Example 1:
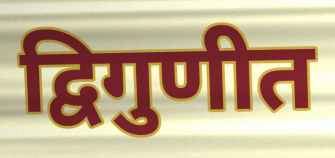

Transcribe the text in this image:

द्विगुणीत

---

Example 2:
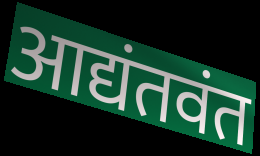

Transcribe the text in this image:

आद्यंतवंत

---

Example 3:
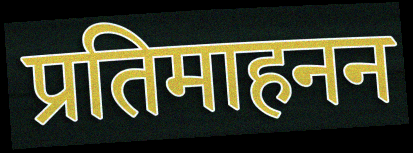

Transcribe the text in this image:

प्रतिमाहनन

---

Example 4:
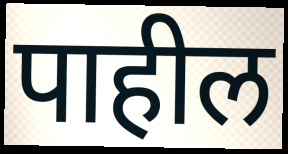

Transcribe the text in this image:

पाहील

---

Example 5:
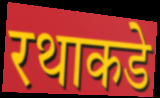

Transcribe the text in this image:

रथाकडे